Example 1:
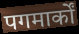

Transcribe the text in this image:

पगमार्कों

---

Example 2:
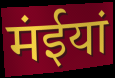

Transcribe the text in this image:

मंईयां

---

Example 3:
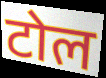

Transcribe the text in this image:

टोल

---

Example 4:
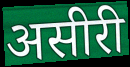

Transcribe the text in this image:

असीरी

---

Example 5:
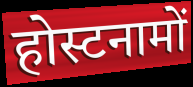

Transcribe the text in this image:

होस्टनामों